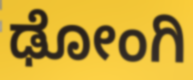
ಢೋಂಗಿ